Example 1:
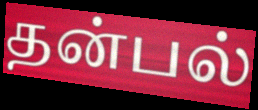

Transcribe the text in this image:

தன்பல்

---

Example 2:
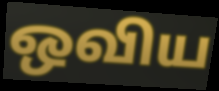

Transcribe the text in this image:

ஒவிய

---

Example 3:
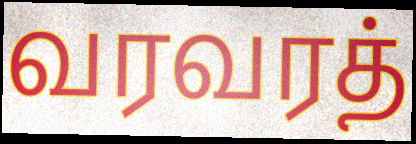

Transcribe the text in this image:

வரவரத்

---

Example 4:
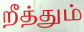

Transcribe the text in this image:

றீத்தும்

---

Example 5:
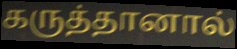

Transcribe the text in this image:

கருத்தானால்